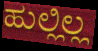
ಹುಲ್ಲಿಲ್ಲ